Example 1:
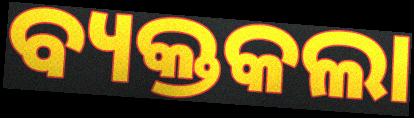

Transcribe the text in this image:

ବ୍ୟକ୍ତକଲା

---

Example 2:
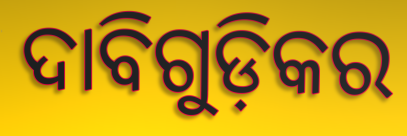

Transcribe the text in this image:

ଦାବିଗୁଡ଼ିକର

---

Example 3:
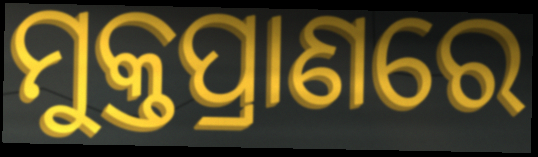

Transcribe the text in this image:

ମୁକ୍ତପ୍ରାଣରେ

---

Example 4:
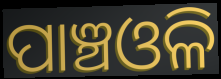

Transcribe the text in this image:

ପାଞ୍ଚଓଳି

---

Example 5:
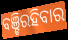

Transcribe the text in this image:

ବଞ୍ଚିରହିବାର